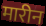
मारीन